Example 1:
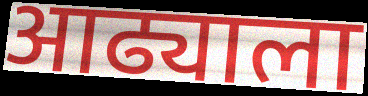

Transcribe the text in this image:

आढ्याला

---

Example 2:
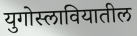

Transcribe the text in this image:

युगोस्लावियातील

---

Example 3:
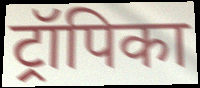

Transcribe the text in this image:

ट्रॉपिका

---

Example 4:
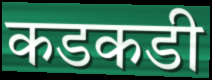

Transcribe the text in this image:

कडकडी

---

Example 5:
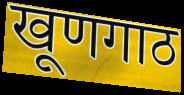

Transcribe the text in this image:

खूणगाठ